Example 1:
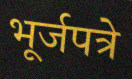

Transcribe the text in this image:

भूर्जपत्रे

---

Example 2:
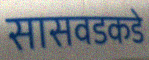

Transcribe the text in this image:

सासवडकडे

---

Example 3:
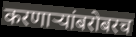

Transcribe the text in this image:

करणाऱ्यांबरोबरच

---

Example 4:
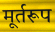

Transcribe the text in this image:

मूर्तरूप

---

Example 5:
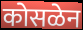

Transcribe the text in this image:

कोसळेन